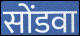
सोंडवा